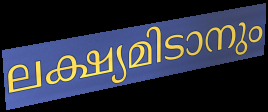
ലക്ഷ്യമിടാനും